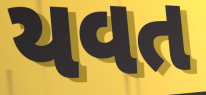
યવત